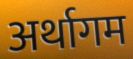
अर्थागम